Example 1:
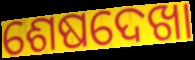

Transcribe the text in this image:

ଶେଷଦେଖା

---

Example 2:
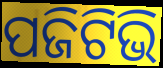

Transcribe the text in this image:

ପଜିଟିଭି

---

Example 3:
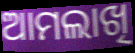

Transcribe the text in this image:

ଆମଲାଖି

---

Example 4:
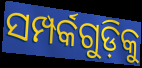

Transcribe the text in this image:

ସମ୍ପର୍କଗୁଡ଼ିକୁ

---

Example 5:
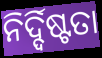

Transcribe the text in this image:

ନିର୍ଦ୍ଦିଷ୍ଟତା